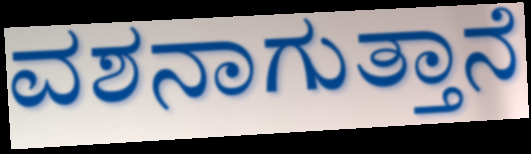
ವಶನಾಗುತ್ತಾನೆ